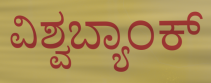
ವಿಶ್ವಬ್ಯಾಂಕ್